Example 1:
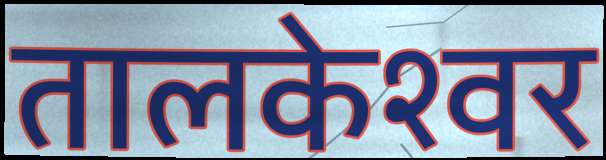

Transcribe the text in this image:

तालकेश्वर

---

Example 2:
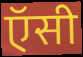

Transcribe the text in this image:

ऍसी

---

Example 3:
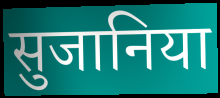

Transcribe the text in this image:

सुजानिया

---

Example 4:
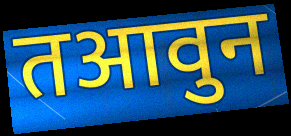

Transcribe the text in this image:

तआवुन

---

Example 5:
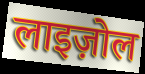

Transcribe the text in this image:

लाइज़ोल